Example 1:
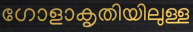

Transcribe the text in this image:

ഗോളാകൃതിയിലുള്ള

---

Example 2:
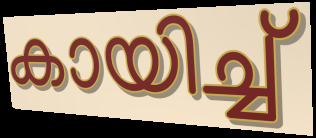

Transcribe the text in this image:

കായിച്ച്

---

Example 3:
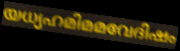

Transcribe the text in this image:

യധ്യഹമിമമവേദിഷം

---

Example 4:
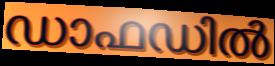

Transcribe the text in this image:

ഡാഫഡിൽ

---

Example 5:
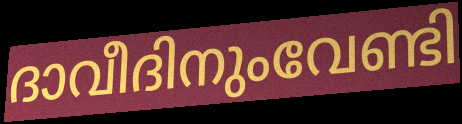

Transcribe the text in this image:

ദാവീദിനുംവേണ്ടി